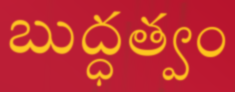
బుద్ధత్వం